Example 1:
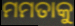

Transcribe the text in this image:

ମମତାକୁ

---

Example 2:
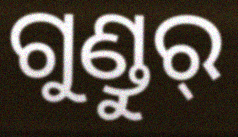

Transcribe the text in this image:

ଗୁଣ୍ଡୁର୍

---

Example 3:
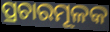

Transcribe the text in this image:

ପ୍ରଚାରମୂଳକ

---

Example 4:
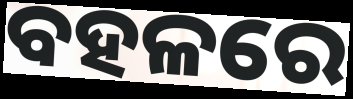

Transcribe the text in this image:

ବହଳରେ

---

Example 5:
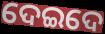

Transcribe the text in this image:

ଦେଇଦେ